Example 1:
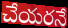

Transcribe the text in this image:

చేయరనే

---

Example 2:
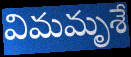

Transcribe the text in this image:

విమమృశే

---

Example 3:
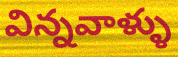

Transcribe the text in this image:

విన్నవాళ్ళు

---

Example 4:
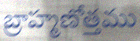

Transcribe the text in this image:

బ్రాహ్మణోత్తము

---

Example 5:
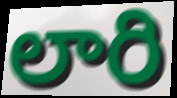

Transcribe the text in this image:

లారి